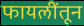
फायलींतून